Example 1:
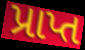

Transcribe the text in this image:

પ્રાપ્‍ત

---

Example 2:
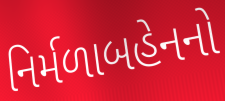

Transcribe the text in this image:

નિર્મળાબહેનનો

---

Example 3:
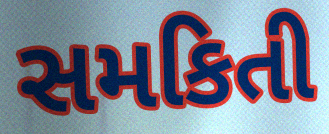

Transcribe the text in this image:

સમકિતી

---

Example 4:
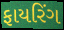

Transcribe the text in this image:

ફાયરિંગ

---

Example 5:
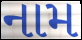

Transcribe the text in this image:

નામ